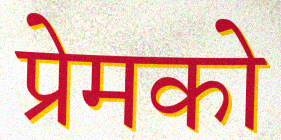
प्रेमको